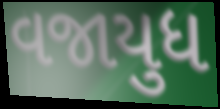
વજાયુધ